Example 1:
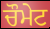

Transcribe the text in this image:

ਚੌਮੇਟ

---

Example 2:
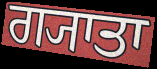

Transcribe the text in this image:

ਗ੍ਯਾਤਾ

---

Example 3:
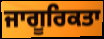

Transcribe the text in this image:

ਜਾਗੂਰਿਕਤਾ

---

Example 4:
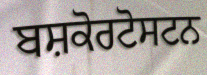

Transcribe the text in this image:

ਬਸ਼ਕੋਰਟੋਸਟਨ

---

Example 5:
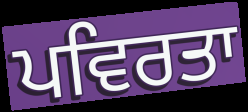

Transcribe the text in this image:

ਪਵਿਰਤਾ